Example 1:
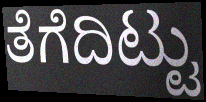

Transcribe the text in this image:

ತೆಗೆದಿಟ್ಟು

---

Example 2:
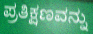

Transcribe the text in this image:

ಪ್ರತಿಕ್ಷಣವನ್ನು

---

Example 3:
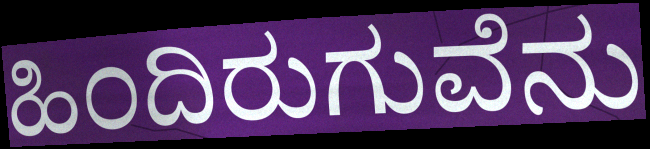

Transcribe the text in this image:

ಹಿಂದಿರುಗುವೆನು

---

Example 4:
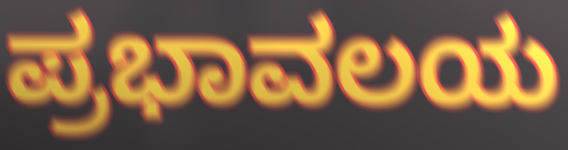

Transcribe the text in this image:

ಪ್ರಭಾವಲಯ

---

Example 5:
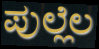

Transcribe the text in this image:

ಪುಲ್ಲೆಲ